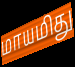
மாயமிது